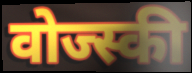
वोज्स्की